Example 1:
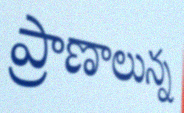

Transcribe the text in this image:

ప్రాణాలున్న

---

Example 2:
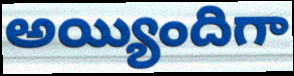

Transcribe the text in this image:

అయ్యిందిగా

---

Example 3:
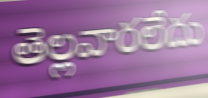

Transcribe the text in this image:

తెల్లవారలేదు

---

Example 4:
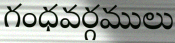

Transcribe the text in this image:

గంధవర్గములు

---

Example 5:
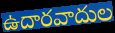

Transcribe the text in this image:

ఉదారవాదుల